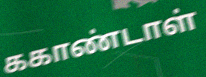
ககாண்டாள்